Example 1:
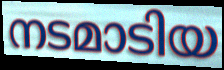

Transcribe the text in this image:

നടമാടിയ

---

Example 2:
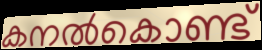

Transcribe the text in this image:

കനൽകൊണ്ട്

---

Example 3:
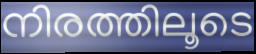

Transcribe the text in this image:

നിരത്തിലൂടെ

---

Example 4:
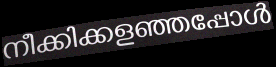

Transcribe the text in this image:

നീക്കിക്കളഞ്ഞപ്പോൾ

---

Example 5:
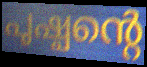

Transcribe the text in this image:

പുഷ്പന്റെ